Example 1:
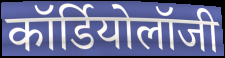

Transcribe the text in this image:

कॉर्डियोलॉजी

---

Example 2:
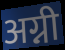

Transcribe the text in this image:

अग्नी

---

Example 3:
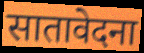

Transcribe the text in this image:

सातावेदना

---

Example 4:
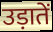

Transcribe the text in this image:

उड़ातें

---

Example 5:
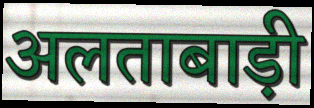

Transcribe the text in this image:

अलताबाड़ी